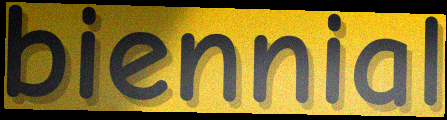
biennial